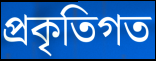
প্ৰকৃতিগত